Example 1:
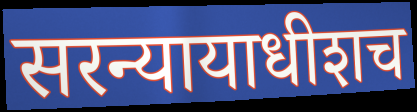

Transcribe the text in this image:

सरन्यायाधीशच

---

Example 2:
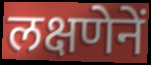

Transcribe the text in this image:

लक्षणेनें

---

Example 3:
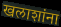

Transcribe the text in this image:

खलाशांना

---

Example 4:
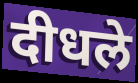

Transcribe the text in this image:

दीधले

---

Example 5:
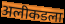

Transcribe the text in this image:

अलीकडला